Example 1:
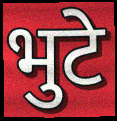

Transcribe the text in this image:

भुटे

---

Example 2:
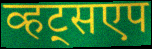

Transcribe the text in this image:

व्हट्सएप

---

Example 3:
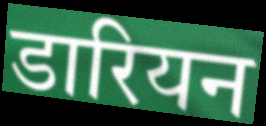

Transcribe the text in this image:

डारियन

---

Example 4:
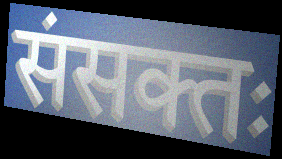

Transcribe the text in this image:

संसक्तः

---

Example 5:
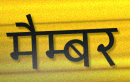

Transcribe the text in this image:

मैम्बर